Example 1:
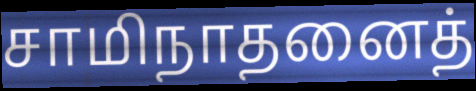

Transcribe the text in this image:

சாமிநாதனைத்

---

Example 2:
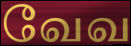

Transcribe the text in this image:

வேவ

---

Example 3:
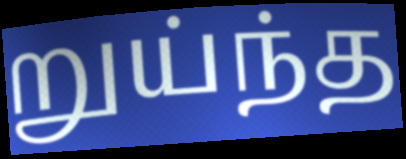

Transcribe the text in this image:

றுய்ந்த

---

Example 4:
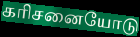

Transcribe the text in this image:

கரிசனையோடு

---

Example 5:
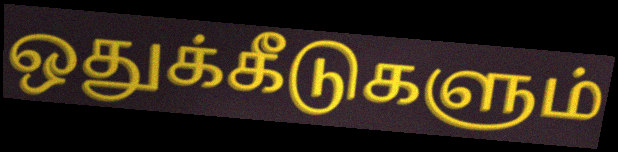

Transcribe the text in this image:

ஒதுக்கீடுகளும்